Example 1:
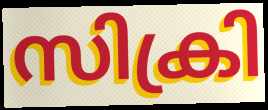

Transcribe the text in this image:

സിക്രി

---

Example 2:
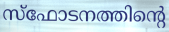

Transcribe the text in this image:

സ്ഫോടനത്തിന്റെ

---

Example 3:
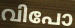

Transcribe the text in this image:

വിപോ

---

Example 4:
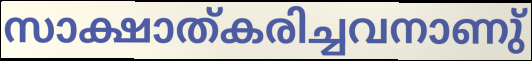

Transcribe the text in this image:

സാക്ഷാത്കരിച്ചവനാണു്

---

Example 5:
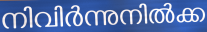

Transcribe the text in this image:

നിവിർന്നുനിൽക്ക